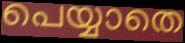
പെയ്യാതെ